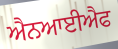
ਐਨਆਈਐਫ